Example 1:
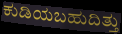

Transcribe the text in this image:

ಕುಡಿಯಬಹುದಿತ್ತು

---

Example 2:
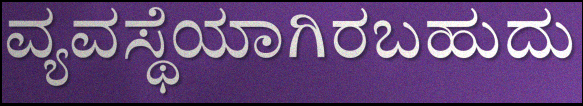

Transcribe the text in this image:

ವ್ಯವಸ್ಥೆಯಾಗಿರಬಹುದು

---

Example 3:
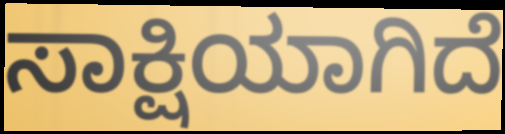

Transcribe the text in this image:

ಸಾಕ್ಷಿಯಾಗಿದೆ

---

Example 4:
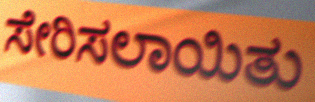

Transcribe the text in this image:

ಸೇರಿಸಲಾಯಿತು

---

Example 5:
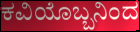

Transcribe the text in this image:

ಕವಿಯೊಬ್ಬನಿಂದ